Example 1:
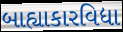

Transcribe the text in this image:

બાહ્યાકારવિદ્યા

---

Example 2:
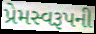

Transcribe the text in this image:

પ્રેમસ્વરૂપની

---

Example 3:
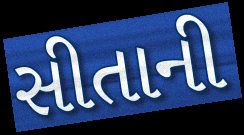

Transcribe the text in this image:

સીતાની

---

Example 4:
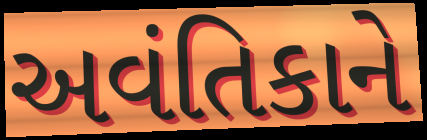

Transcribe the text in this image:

અવંતિકાને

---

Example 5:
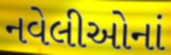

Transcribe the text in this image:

નવેલીઓનાં